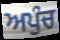
ਅਪੁੰਚ